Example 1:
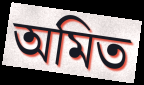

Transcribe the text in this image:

অমিত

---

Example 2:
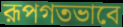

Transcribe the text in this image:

রূপগতভাবে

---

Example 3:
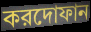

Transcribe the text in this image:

করদোফান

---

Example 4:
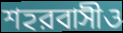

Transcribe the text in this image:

শহরবাসীও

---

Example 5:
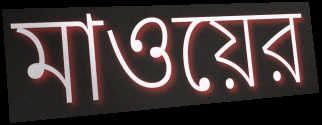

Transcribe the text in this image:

মাওয়ের